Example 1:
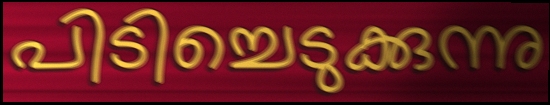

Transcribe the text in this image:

പിടിച്ചെടുക്കുന്നു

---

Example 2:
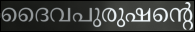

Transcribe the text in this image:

ദൈവപുരുഷന്റെ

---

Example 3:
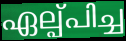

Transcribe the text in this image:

ഏല്പ്പിച്ച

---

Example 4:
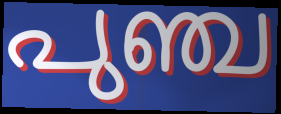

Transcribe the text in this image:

പുഞ്ച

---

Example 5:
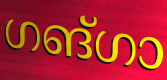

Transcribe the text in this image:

ഗങ്ഗാ